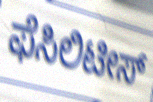
ಫೆಸಿಲಿಟೀಸ್